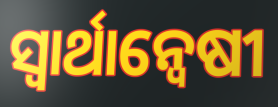
ସ୍ବାର୍ଥାନ୍ବେଷୀ